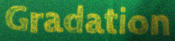
Gradation